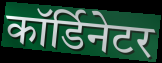
कॉर्डिनेटर